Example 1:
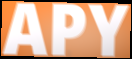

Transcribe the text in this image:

APY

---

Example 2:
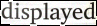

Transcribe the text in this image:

displayed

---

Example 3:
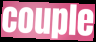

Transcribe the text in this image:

couple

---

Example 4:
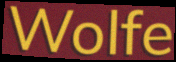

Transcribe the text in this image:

Wolfe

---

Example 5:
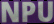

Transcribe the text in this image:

NPU